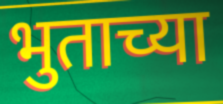
भुताच्या